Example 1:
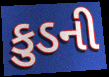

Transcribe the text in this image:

કુડની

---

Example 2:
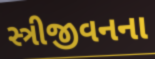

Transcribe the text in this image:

સ્ત્રીજીવનના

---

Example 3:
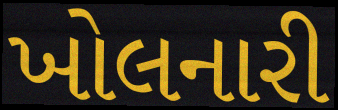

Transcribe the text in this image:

ખોલનારી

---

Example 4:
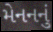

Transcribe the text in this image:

મેનનનું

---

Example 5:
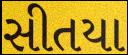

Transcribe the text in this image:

સીતયા